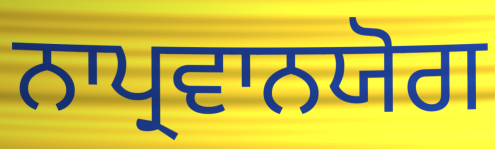
ਨਾਪ੍ਰਵਾਨਯੋਗ